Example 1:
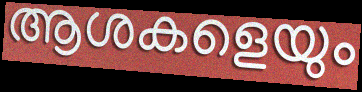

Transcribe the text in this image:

ആശകളെയും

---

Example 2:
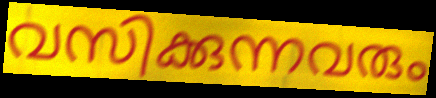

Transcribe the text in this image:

വസിക്കുന്നവരും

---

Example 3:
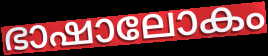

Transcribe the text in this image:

ഭാഷാലോകം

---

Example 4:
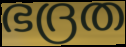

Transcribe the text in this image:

ഭദ്രത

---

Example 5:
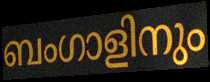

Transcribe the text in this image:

ബംഗാളിനും